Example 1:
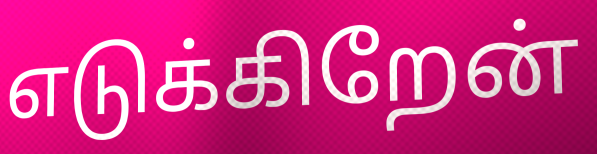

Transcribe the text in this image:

எடுக்கிறேன்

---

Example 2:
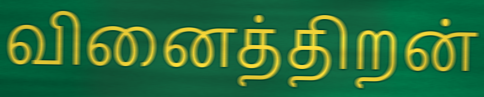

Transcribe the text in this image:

வினைத்திறன்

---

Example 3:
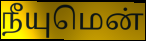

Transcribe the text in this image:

நீயுமென்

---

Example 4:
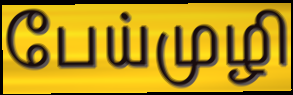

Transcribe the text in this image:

பேய்முழி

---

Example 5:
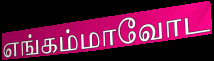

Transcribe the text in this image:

எங்கம்மாவோட